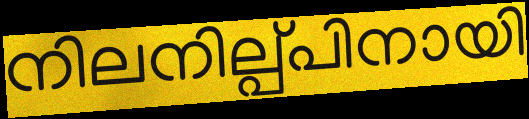
നിലനില്പ്പിനായി